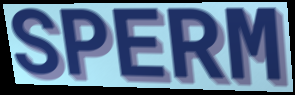
SPERM